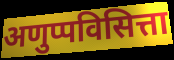
अणुप्पविसित्ता